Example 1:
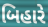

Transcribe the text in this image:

બિહારે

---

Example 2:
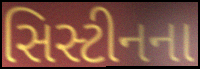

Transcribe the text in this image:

સિસ્ટીનના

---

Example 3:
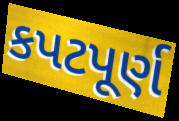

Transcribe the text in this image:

કપટપૂર્ણ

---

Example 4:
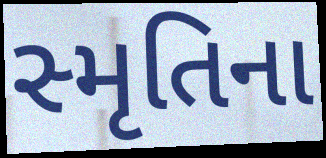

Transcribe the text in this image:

સ્મૃતિના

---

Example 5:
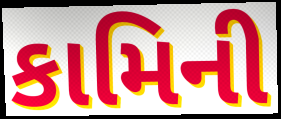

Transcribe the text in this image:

કામિની